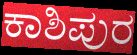
ಕಾಶಿಪುರ